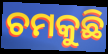
ଚମକୁଛି